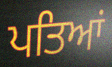
ਪਤਿਆਂ